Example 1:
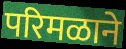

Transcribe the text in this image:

परिमळाने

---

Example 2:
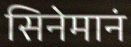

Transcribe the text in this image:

सिनेमानं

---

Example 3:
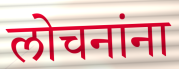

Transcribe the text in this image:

लोचनांना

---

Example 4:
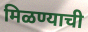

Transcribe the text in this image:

मिळण्याची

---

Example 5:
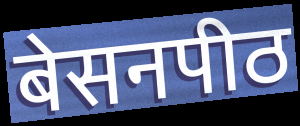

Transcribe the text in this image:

बेसनपीठ